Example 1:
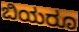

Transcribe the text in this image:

ಬಿಯರೂ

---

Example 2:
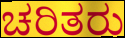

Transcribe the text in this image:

ಚರಿತರು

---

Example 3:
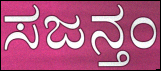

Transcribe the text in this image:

ಸಜನ್ತಂ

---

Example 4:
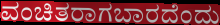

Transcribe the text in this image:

ವಂಚಿತರಾಗಬಾರದೆಂದು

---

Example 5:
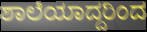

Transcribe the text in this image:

ಶಾಲೆಯಾದ್ದರಿಂದ